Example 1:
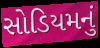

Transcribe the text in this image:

સોડિયમનું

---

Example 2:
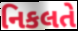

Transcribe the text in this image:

નિકલતે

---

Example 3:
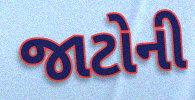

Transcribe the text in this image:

જાટોની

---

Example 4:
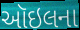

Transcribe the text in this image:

ઑઇલના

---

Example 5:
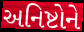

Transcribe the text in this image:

અનિષ્ટોને